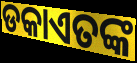
ଡକାଏତଙ୍କ